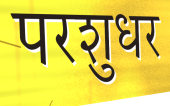
परशुधर